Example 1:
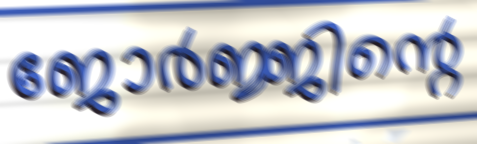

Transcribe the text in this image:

ജോർജ്ജിന്റെ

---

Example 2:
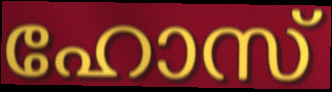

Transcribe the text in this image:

ഹോസ്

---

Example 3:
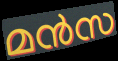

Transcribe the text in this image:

മൻസ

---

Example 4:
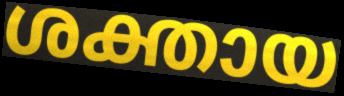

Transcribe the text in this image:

ശക്തായ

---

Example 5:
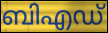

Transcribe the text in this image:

ബിഎഡ്